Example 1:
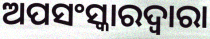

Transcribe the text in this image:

ଅପସଂସ୍କାରଦ୍ୱାରା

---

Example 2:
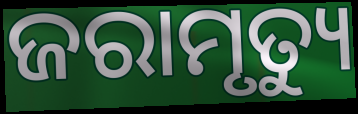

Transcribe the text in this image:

ଜରାମୃତ୍ୟୁ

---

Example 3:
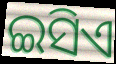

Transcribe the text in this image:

ଇସିଏ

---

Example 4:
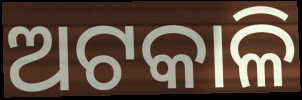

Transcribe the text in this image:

ଅଟକାଳି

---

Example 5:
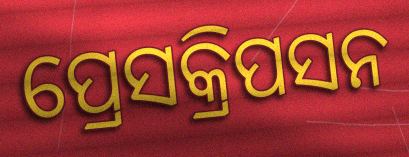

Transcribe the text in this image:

ପ୍ରେସକ୍ରିପସନ